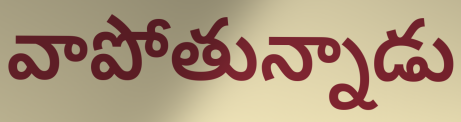
వాపోతున్నాడు